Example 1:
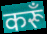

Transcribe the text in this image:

करूँ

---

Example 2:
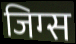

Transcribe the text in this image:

जिग्स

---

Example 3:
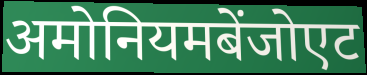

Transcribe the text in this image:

अमोनियमबेंजोएट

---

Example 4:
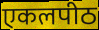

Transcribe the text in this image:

एकलपीठ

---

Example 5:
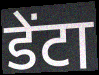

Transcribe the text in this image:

डेंटा